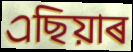
এছিয়াৰ